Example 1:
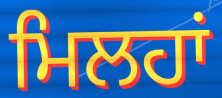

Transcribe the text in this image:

ਮਿਲਹਾਂ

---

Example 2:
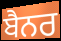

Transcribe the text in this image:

ਬੈਨਰ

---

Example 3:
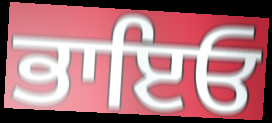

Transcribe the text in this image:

ਭਾਇਓ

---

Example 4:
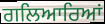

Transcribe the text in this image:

ਗਲਿਆਰਿਆਂ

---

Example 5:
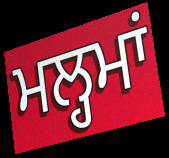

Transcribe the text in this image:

ਮਲ੍ਹਮਾਂ